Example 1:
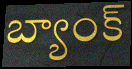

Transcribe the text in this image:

బ్యాంక్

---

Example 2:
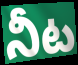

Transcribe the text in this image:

నీట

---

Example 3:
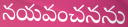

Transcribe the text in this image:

నయవంచనను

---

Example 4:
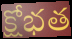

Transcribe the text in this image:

క్షోభత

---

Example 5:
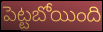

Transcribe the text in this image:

పెట్టబోయింది